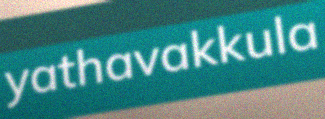
yathavakkula